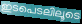
ഇടപെടലിലൂടെ